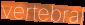
vertebral